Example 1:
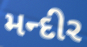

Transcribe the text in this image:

મન્દીર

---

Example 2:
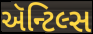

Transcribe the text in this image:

ઍન્ટિલ્સ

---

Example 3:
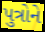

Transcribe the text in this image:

પુત્રોને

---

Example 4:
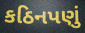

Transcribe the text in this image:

કઠિનપણું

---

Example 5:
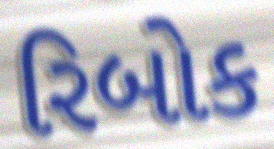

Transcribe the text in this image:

રિબોક